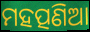
ମହତ୍ପଣିଆ